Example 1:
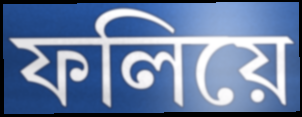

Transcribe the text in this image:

ফলিয়ে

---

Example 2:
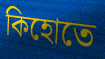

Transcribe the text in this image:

কিহোতে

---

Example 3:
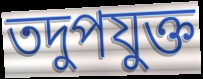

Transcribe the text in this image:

তদুপযুক্ত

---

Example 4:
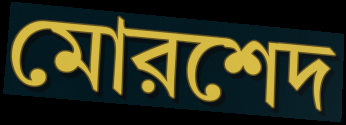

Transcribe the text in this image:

মোরশেদ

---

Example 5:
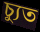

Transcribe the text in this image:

চ্যুত